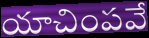
యాచింపవే